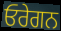
ਓਰੇਗਨ